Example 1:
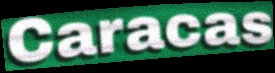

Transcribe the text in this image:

Caracas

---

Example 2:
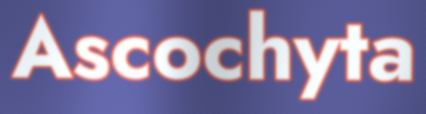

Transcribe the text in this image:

Ascochyta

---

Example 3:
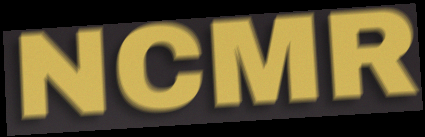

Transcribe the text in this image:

NCMR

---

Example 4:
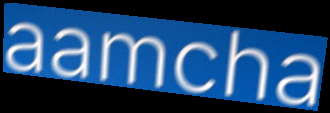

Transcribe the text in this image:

aamcha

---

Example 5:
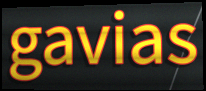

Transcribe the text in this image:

gavias